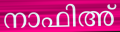
നാഫിഅ്